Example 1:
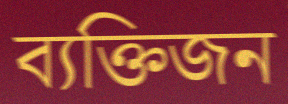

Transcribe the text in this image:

ব্যক্তিজন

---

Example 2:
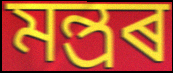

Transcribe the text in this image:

মন্ত্ৰৰ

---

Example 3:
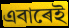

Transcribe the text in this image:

এবাৰেই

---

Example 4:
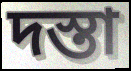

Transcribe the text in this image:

দস্তা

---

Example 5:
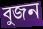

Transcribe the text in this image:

বুজন